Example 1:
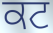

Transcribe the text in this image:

ਕਟ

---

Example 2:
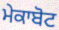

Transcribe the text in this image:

ਮੇਕਾਬੋਟ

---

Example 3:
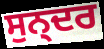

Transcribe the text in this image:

ਸੁਨ੍ਦਰ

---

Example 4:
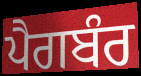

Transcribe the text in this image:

ਪੈਗਬੰਰ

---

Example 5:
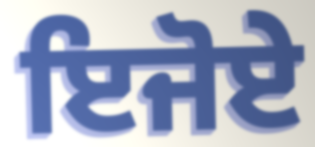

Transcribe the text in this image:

ਇਜੋਏ